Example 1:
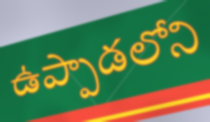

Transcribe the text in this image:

ఉప్పాడలోని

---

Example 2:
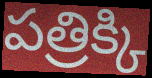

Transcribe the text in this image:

పత్రిక్కి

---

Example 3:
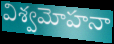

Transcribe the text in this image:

విశ్వమోహనా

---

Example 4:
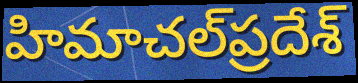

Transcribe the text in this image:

హిమాచల్‌ప్రదేశ్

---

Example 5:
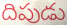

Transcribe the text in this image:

దిపుడు